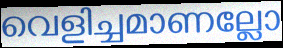
വെളിച്ചമാണല്ലോ